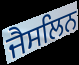
ਜੈਸਲਿਨ